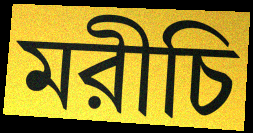
মরীচি